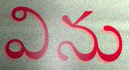
విను